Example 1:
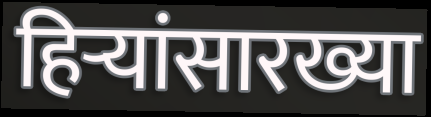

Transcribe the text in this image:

हिऱ्यांसारख्या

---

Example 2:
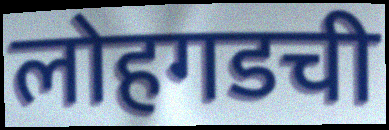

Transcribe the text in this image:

लोहगडची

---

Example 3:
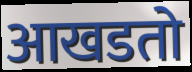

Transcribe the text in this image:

आखडतो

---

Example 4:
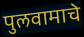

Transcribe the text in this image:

पुलवामाचे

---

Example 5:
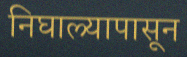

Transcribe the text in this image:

निघाल्यापासून